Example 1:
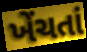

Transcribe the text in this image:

ખેંચતાં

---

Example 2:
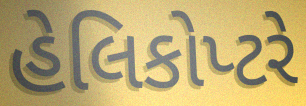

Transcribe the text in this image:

હેલિકોપ્ટરે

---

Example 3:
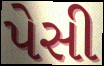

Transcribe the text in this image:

પેસી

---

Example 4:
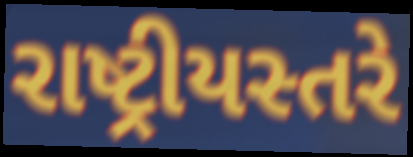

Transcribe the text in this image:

રાષ્ટ્રીયસ્તરે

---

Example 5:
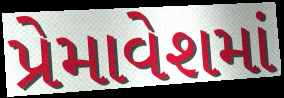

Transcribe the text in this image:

પ્રેમાવેશમાં